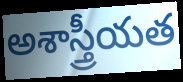
అశాస్త్రీయత